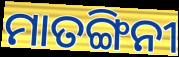
ମାତଙ୍ଗିନୀ